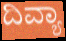
ದಿವ್ಯಾ